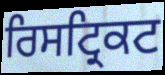
ਰਿਸਟ੍ਰਿਕਟ